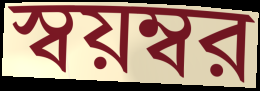
স্বয়ম্বর